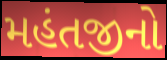
મહંતજીનો